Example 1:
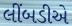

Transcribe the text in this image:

લીંબડીએ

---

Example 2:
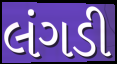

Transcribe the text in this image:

લંગડી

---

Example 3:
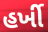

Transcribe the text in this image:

હર્ખી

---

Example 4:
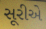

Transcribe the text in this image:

સૂરીએ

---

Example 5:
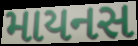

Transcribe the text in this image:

માયનસ